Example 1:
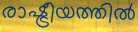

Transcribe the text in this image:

രാഷ്ട്രീയത്തിൽ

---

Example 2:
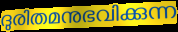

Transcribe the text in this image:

ദുരിതമനുഭവിക്കുന്ന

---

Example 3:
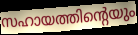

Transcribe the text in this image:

സഹായത്തിന്റെയും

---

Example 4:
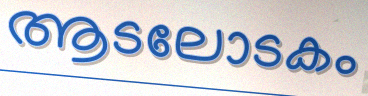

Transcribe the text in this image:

ആടലോടകം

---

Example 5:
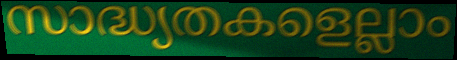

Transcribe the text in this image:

സാദ്ധ്യതകളെല്ലാം